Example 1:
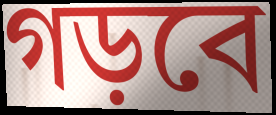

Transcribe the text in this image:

গড়বে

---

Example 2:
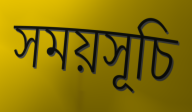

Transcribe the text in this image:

সময়সূচি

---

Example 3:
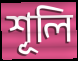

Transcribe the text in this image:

শূলি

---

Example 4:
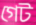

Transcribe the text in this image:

গেট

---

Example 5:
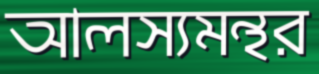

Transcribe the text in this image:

আলস্যমন্থর